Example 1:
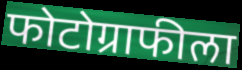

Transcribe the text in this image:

फोटोग्राफीला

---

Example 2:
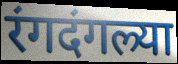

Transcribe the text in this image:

रंगदंगल्या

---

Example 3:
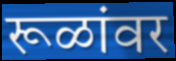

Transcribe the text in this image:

रूळांवर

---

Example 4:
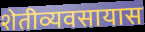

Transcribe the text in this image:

शेतीव्यवसायास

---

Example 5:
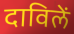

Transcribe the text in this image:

दाविलें